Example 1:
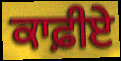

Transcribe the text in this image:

ਕਾਫ਼ੀਏ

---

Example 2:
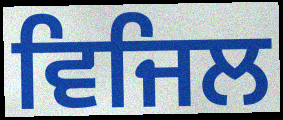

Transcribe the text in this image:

ਵਿਜਿਲ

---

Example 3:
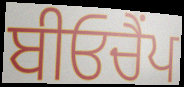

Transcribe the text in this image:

ਬੀਓਚੈਂਪ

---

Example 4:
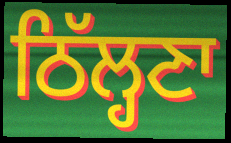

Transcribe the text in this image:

ਠਿੱਲ੍ਹਣਾ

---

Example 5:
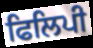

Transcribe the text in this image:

ਫਿਲਿਪੀ